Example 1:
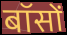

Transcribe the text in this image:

बॉसों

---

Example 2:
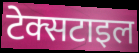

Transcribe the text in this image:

टेक्‍सटाइल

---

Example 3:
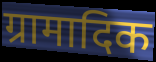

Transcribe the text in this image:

ग्रामादिक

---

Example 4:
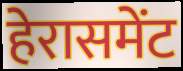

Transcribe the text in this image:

हेरासमेंट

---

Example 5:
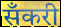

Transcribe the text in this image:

सँकरी